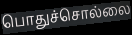
பொதுச்சொல்லை